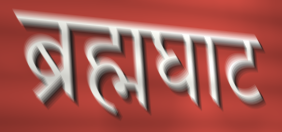
ब्रह्मघाट